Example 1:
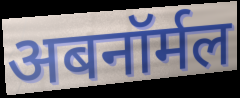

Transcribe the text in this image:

अबनॉर्मल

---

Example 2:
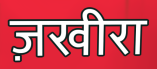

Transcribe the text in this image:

ज़खीरा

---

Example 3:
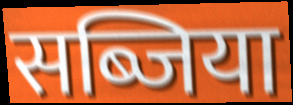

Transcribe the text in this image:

सब्ज़िया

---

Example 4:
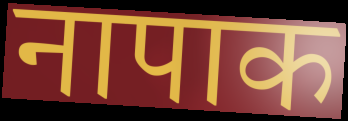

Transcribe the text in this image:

नापाक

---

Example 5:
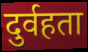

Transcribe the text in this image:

दुर्वहता